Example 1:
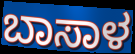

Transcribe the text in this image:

ಬಾಸಾಳ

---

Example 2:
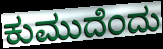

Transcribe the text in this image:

ಕುಮುದೆಂದು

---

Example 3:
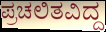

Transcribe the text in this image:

ಪ್ರಚಲಿತವಿದ್ದ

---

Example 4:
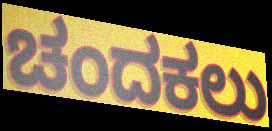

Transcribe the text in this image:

ಚಂದಕಲು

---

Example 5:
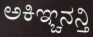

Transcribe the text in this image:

ಅಕಿಞ್ಚನನ್ತಿ